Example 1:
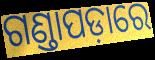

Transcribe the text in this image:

ଗଣ୍ଡାପଡ଼ାରେ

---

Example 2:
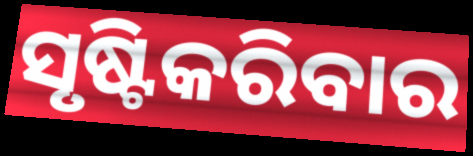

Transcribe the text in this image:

ସୃଷ୍ଟିକରିବାର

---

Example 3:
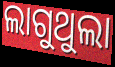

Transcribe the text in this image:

ଲାଗୁଥୁଲା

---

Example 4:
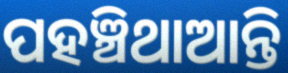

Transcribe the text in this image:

ପହଞ୍ଚିଥାଆନ୍ତି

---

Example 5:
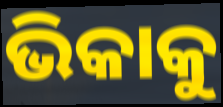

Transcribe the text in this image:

ଭିକାକୁ